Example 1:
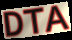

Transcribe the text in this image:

DTA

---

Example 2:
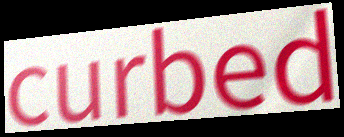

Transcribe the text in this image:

curbed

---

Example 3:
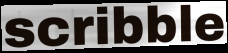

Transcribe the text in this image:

scribble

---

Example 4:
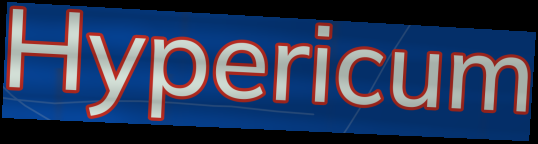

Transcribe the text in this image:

Hypericum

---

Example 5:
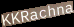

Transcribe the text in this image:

KKRachna